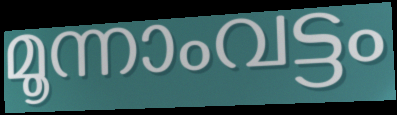
മൂന്നാംവട്ടം